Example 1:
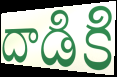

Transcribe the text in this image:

దాడికి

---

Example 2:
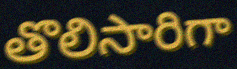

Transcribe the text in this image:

తొలిసారిగా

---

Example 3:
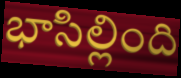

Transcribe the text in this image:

భాసిల్లింది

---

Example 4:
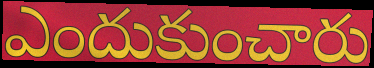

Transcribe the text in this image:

ఎందుకుంచారు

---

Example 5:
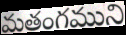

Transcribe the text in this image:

మతంగముని